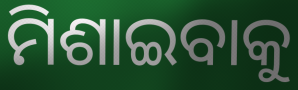
ମିଶାଇବାକୁ